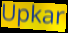
Upkar